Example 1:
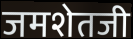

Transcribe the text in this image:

जमशेतजी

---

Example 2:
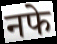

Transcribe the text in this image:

नफे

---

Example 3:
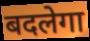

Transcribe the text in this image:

बदलेगा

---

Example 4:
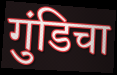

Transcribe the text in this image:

गुंडिचा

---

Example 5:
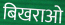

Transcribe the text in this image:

बिखराओ